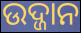
ଉଦ୍ଜାନ